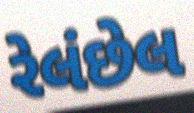
રેલંછેલ